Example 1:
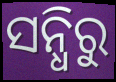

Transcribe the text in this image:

ସନ୍ଧିରୁ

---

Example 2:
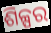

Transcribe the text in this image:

ଶିଳ୍ପର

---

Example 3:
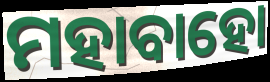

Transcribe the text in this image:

ମହାବାହୋ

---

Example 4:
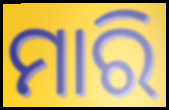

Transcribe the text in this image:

ମାରି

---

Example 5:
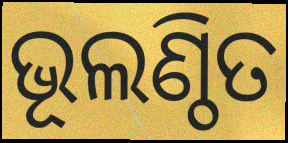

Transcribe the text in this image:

ଭୂଲଣ୍ଠିତ